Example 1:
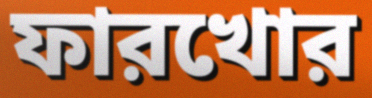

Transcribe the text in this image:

ফারখোর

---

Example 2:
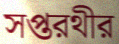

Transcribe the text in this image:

সপ্তরথীর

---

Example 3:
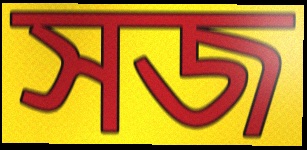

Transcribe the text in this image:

সজ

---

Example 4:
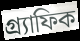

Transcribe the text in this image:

গ্র্যাফিক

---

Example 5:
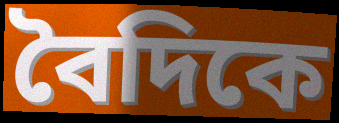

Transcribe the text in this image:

বৈদিকে